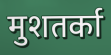
मुशतर्का